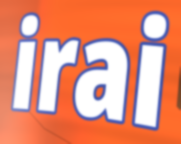
irai